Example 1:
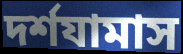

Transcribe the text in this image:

দর্শযামাস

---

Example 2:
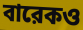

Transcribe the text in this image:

বারেকও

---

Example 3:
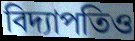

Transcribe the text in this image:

বিদ্যাপতিও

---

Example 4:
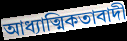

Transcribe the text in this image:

আধ্যাত্মিকতাবাদী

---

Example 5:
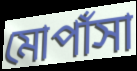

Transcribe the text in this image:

মোপাঁসা